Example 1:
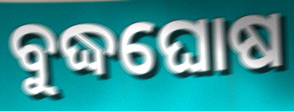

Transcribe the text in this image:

ବୁଦ୍ଧଘୋଷ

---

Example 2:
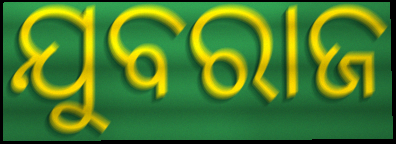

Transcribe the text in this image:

ଯୁବରାଜ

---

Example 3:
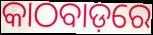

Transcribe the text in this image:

କାଠବାଡ଼ରେ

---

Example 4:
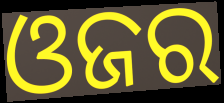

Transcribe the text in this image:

ଓଜର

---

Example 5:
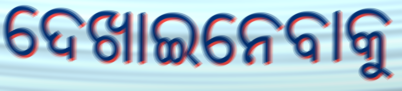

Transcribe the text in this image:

ଦେଖାଇନେବାକୁ